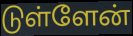
டுள்ளேன்